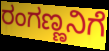
ರಂಗಣ್ಣನಿಗೆ